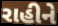
રાહીને